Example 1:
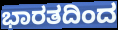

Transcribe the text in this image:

ಭಾರತದಿಂದ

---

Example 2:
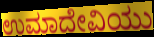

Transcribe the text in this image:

ಉಮಾದೇವಿಯು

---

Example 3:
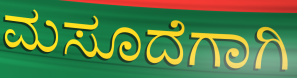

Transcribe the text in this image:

ಮಸೂದೆಗಾಗಿ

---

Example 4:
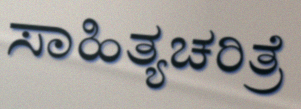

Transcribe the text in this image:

ಸಾಹಿತ್ಯಚರಿತ್ರೆ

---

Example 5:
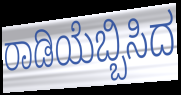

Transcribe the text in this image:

ರಾಡಿಯೆಬ್ಬಿಸಿದ